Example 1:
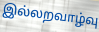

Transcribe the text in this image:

இல்லறவாழ்வு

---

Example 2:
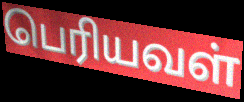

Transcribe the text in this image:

பெரியவள்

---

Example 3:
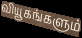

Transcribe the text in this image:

வியூகங்களும்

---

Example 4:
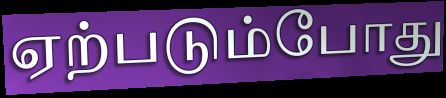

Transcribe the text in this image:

ஏற்படும்போது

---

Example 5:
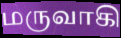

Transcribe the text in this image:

மருவாகி